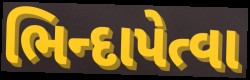
ભિન્દાપેત્વા